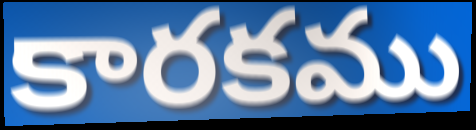
కారకము